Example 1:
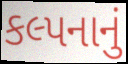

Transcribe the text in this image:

કલ્પનાનું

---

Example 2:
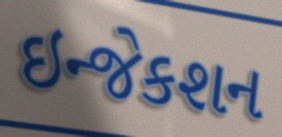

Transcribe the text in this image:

ઇન્જેકશન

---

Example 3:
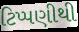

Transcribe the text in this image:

ટિપ્પણીથી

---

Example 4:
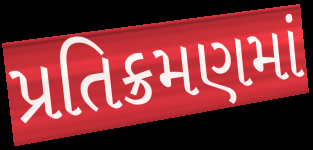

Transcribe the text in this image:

પ્રતિક્રમણમાં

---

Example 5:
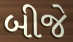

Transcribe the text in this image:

બીજે